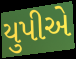
યુપીએ